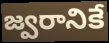
జ్వరానికే